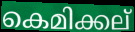
കെമിക്കല്